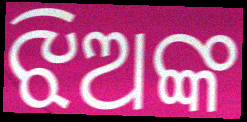
ଝିଅଙ୍କ